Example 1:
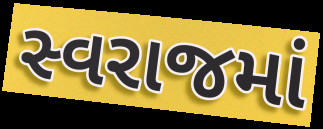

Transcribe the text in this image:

સ્વરાજમાં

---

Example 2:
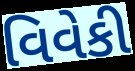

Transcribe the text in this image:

વિવેકી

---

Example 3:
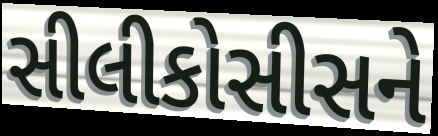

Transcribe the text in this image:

સીલીકોસીસને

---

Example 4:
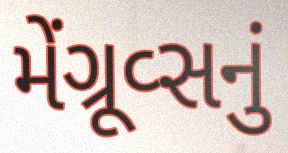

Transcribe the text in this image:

મેંગ્રૂવ્સનું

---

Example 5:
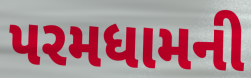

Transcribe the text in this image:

પરમધામની